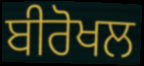
ਬੀਰੋਖਲ